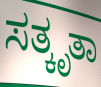
ಸತ್ಕೃತಾ